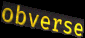
obverse